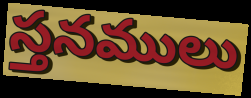
స్తనములు